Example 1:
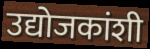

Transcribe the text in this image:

उद्योजकांशी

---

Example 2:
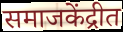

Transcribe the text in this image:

समाजकेंद्रीत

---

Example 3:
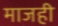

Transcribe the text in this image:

माजही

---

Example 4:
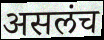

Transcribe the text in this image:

असलंच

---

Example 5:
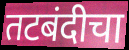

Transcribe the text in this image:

तटबंदीचा